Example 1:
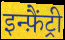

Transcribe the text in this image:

इन्फ़ैंट्री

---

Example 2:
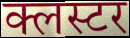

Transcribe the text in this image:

क्लस्टर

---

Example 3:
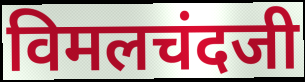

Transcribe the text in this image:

विमलचंदजी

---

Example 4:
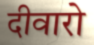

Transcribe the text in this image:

दीवारो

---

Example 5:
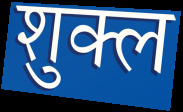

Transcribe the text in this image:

शुक्ल